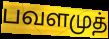
பவளமுத்